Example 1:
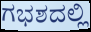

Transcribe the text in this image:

ಗಭಶದಲ್ಲಿ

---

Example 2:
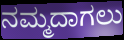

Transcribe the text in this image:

ನಮ್ಮದಾಗಲು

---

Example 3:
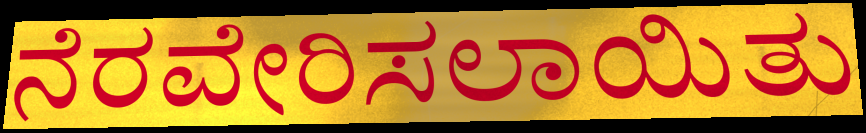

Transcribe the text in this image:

ನೆರವೇರಿಸಲಾಯಿತು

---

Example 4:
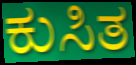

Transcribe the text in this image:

ಕುಸಿತ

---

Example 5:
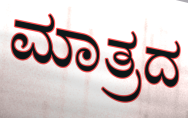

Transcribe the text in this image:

ಮಾತ್ರದ